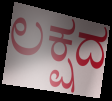
ಲಕ್ಷದ